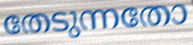
തേടുന്നതോ